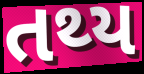
તથ્ય